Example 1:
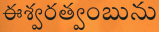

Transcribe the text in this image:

ఈశ్వరత్వంబును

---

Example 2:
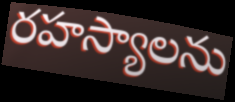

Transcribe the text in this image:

రహస్యాలను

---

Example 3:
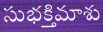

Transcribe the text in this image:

సుభక్తిమాశు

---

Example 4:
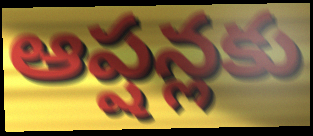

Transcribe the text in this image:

ఆప్షన్లకు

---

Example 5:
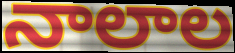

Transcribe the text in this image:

నాలాల